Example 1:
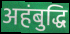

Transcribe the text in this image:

अहंबुद्धि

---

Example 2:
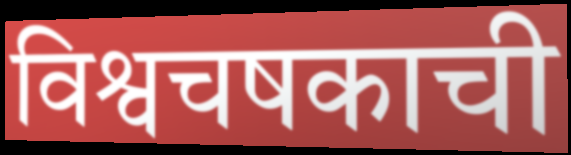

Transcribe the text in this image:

विश्वचषकाची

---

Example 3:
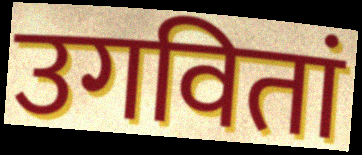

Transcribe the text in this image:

उगवितां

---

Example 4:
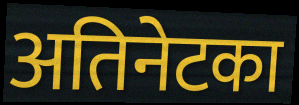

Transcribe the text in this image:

अतिनेटका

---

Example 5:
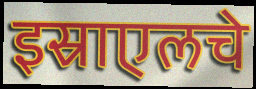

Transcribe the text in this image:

इस्राएलचे